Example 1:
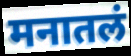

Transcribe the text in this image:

मनातलं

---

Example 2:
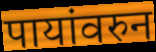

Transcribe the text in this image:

पायांवरुन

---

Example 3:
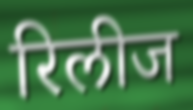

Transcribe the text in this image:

रिलीज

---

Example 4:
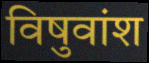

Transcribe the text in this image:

विषुवांश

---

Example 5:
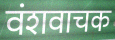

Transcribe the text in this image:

वंशवाचक